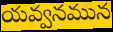
యవ్వనమున